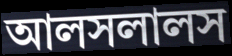
আলসলালস